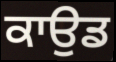
ਕਾਉਡ